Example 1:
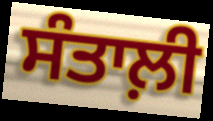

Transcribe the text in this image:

ਸੰਤਾਲ਼ੀ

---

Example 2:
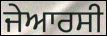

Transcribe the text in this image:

ਜੇਆਰਸੀ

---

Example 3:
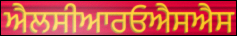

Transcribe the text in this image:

ਐਲਸੀਆਰਓਐਸਐਸ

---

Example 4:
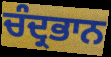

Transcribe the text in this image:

ਚੰਦ੍ਰਭਾਨ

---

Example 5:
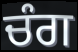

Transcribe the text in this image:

ਚੰਗ